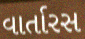
વાર્તારસ